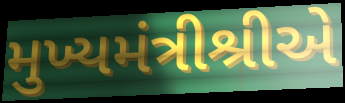
મુખ્યમંત્રીશ્રીએ